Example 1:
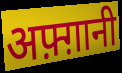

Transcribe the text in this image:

अफ़्ग़ानी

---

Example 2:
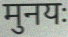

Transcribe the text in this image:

मुनयः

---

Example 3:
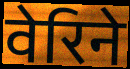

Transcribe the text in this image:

वेरिने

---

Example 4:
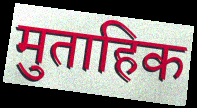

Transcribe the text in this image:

मुताहिक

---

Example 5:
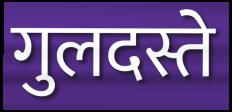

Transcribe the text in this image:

गुलदस्ते